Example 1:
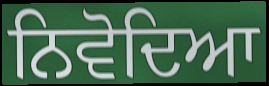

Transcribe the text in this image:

ਨਿਵੋਦਿਆ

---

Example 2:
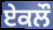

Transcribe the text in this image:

ਏਕਲੌ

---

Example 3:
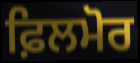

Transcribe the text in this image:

ਫ਼ਿਲਮੋਰ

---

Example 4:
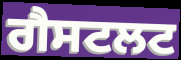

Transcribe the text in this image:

ਗੈਸਟਲਟ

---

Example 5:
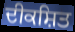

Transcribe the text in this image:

ਦੀਕਸ਼ਿਤ